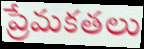
ప్రేమకతలు